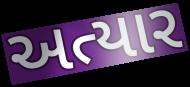
અત્યાર